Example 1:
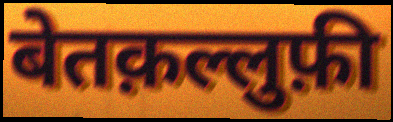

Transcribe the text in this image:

बेतक़ल्लुफ़ी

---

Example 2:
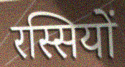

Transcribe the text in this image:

रस्सियों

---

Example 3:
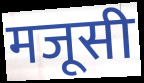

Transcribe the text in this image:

मजूसी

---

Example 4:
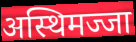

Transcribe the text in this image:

अस्थिमज्जा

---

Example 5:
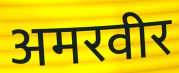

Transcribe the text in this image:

अमरवीर